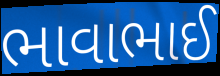
ભાવાભાઈ